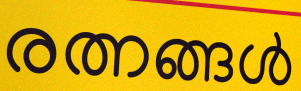
രത്നങ്ങൾ